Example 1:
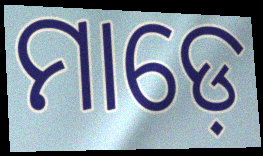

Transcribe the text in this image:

ମାଡ଼େ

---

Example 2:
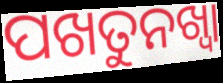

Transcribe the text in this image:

ପଖତୁନଖ୍ୱା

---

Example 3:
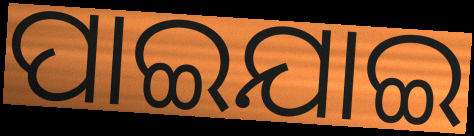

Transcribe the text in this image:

ପାଇଯାଇ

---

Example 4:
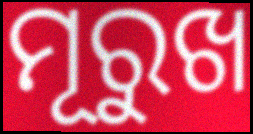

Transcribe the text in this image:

ମୂରୁଖ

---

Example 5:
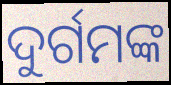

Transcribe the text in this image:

ଦୁର୍ଗମଙ୍କ